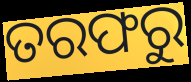
ତରଫରୁ